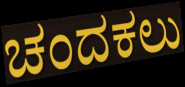
ಚಂದಕಲು